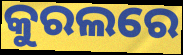
କୁରଲରେ